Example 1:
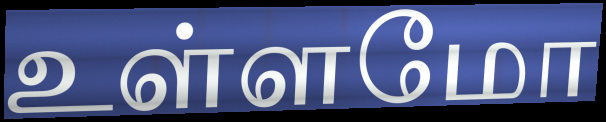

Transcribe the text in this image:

உள்ளமோ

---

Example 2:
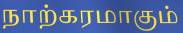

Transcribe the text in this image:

நாற்கரமாகும்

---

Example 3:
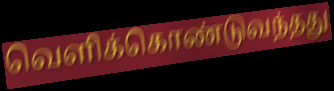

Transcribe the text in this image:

வெளிக்கொண்டுவந்தது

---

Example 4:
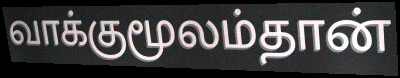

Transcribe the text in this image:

வாக்குமூலம்தான்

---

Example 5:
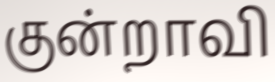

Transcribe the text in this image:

குன்றாவி